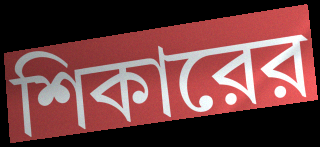
শিকারের